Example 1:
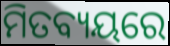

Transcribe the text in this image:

ମିତବ୍ୟୟରେ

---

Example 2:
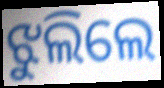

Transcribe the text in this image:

ଝୁଲିଲେ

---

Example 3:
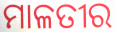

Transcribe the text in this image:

ମାଳତୀର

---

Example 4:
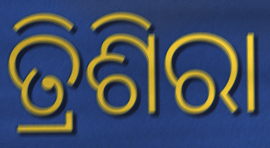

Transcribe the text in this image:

ତ୍ରିଶିରା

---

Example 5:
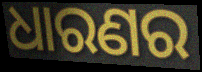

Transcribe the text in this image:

ଧାରଣର